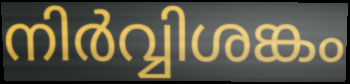
നിർവ്വിശങ്കം